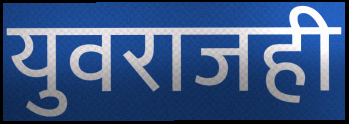
युवराजही